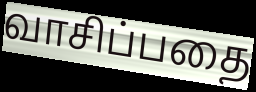
வாசிப்பதை